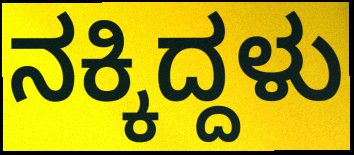
ನಕ್ಕಿದ್ದಳು